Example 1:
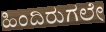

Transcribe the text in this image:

ಹಿಂದಿರುಗಲೇ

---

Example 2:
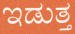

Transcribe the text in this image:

ಇಡುತ್ತ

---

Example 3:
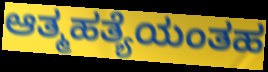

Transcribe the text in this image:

ಆತ್ಮಹತ್ಯೆಯಂತಹ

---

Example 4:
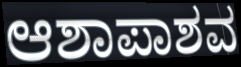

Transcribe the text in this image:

ಆಶಾಪಾಶವ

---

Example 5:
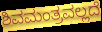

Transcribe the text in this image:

ಶಿವಮಂತ್ರವಲ್ಲದೆ